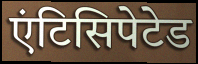
एंटिसिपेटेड